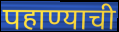
पहाण्याची